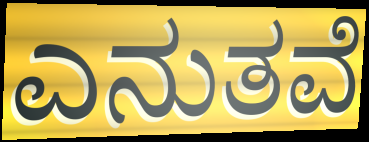
ಎನುತವೆ